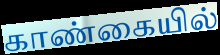
காண்கையில்